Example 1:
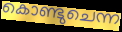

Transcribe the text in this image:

കൊണ്ടുചെന്ന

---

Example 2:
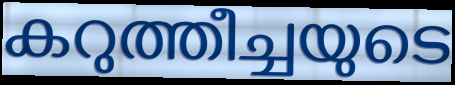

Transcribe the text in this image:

കറുത്തീച്ചയുടെ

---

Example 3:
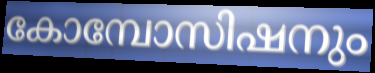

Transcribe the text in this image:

കോമ്പോസിഷനും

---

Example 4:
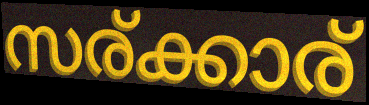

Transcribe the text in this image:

സര്ക്കാര്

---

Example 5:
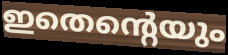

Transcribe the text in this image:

ഇതെന്റെയും